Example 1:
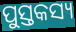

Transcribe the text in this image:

ପୁସ୍ତକସ୍ୟ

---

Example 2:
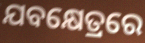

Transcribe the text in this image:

ଯବକ୍ଷେତ୍ରରେ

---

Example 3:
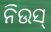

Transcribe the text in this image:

ନିଉସ୍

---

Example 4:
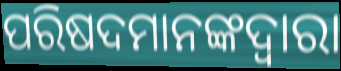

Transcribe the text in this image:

ପରିଷଦମାନଙ୍କଦ୍ୱାରା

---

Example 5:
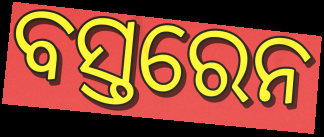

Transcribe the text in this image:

ବସ୍ତରେନ